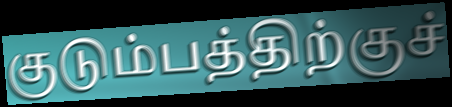
குடும்பத்திற்குச்